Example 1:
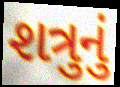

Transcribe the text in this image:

શત્રુનું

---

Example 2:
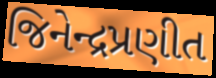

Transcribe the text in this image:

જિનેન્દ્રપ્રણીત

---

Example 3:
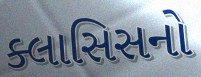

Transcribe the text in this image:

ક્લાસિસનો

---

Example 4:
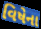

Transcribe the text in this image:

વિષેના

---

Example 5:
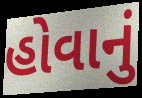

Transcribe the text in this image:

હોવાનું